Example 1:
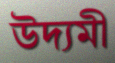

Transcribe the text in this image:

উদ্যমী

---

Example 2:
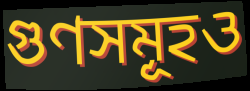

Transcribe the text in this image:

গুণসমূহও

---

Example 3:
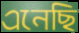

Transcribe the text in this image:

এনেছি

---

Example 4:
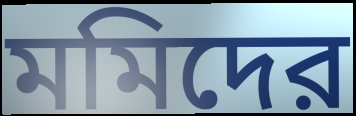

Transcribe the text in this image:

মমিদের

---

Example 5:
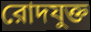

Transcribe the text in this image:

রোদযুক্ত